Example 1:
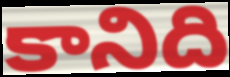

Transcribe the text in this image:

కానిది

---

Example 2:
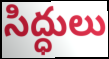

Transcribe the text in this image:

సిద్ధులు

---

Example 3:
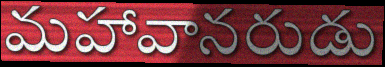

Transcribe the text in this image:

మహావానరుడు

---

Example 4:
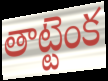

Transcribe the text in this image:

తాట్టెంక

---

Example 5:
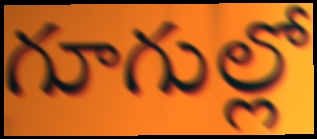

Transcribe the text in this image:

గూగుల్లో